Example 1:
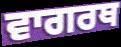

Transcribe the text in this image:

ਵਾਗਰਥ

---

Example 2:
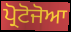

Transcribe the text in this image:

ਪ੍ਰੋਟੋਜੋਆ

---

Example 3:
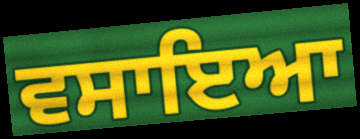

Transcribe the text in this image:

ਵਸਾਇਆ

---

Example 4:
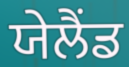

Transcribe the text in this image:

ਯੇਲੈਂਡ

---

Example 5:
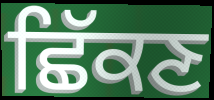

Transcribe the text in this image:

ਛਿੱਕਣ